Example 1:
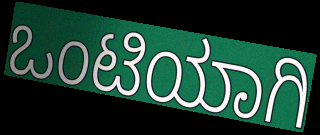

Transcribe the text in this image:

ಒಂಟಿಯಾಗಿ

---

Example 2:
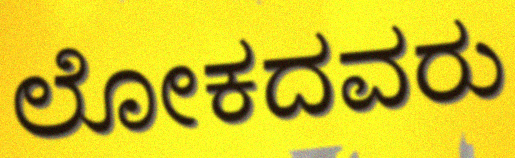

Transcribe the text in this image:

ಲೋಕದವರು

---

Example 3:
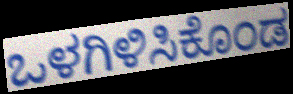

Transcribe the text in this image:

ಒಳಗಿಳಿಸಿಕೊಂಡ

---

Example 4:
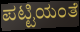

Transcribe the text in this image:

ಪಟ್ಟಿಯಂತೆ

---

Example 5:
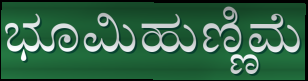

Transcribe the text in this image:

ಭೂಮಿಹುಣ್ಣಿಮೆ